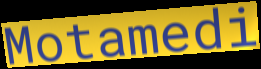
Motamedi